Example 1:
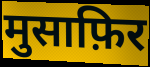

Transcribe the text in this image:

मुसाफ़िर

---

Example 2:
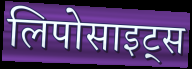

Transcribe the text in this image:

लिपोसाइट्स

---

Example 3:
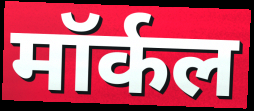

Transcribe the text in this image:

मॉर्कल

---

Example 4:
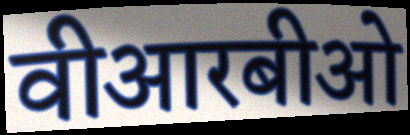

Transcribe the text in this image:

वीआरबीओ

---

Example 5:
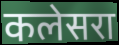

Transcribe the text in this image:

कलेसरा